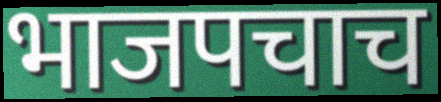
भाजपचाच